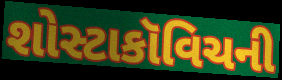
શોસ્ટાકૉવિચની